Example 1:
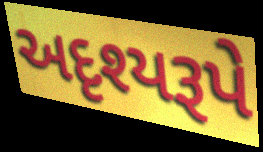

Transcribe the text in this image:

અદૃશ્યરૂપે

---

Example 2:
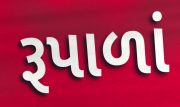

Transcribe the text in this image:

રૂપાળાં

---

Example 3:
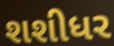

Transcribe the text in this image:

શશીધર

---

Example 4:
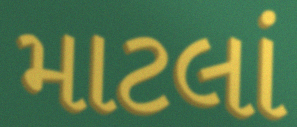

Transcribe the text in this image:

માટલાં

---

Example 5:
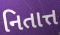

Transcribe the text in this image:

નિતાત્ત